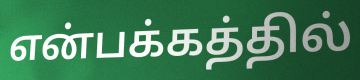
என்பக்கத்தில்